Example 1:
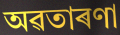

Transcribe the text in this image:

অৱতাৰণা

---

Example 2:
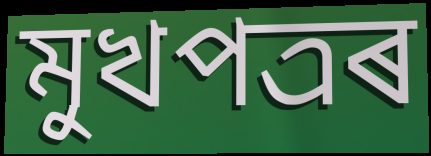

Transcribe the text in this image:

মুখপত্ৰৰ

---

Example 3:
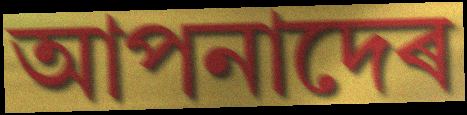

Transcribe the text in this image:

আপনাদেৰ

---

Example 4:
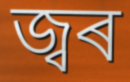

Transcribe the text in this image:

জ্বৰ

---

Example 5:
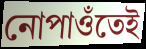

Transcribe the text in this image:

নোপাওঁতেই